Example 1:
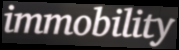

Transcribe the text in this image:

immobility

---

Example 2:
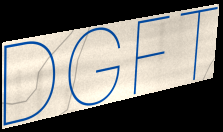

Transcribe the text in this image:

DGFT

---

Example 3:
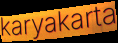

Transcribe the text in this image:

karyakarta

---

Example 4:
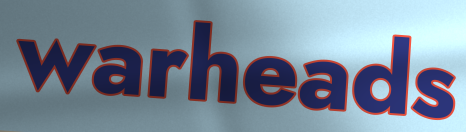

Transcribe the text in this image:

warheads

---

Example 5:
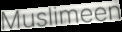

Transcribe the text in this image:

Muslimeen